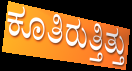
ಕೂತಿರುತ್ತಿತ್ತು